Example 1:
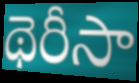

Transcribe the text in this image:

థెరీసా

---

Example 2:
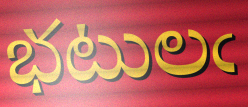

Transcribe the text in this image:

భటులఁ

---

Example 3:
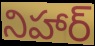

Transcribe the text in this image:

నిహార్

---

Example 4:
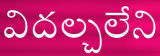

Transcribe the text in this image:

విదల్చలేని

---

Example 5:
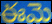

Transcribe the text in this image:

ఈమె